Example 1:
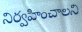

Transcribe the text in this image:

నిర్వహించాలని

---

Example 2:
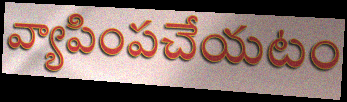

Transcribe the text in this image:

వ్యాపింపచేయటం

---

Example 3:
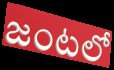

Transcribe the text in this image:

జంటలో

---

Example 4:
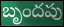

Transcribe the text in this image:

బృందపు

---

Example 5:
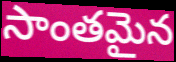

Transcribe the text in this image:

సాంతమైన